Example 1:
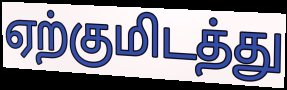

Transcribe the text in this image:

ஏற்குமிடத்து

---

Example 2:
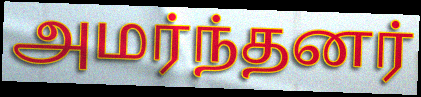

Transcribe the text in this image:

அமர்ந்தனர்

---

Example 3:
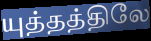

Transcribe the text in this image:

யுத்தத்திலே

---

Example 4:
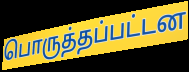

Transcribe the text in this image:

பொருத்தப்பட்டன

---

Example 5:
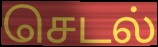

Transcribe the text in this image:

செடல்